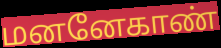
மனனேகாண்